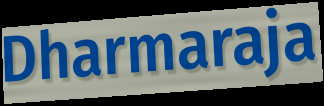
Dharmaraja